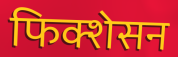
फिक्शेसन